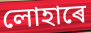
লোহাৰে